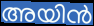
അയിൻ